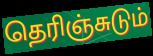
தெரிஞ்சுடும்